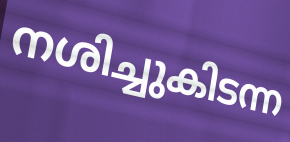
നശിച്ചുകിടന്ന